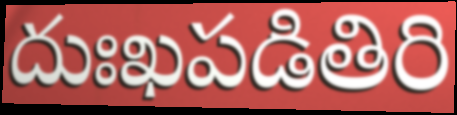
దుఃఖపడితిరి